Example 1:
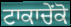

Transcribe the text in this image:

ਟਾਕਾਚੇਂਕੋ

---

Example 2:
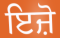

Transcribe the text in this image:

ਇਜ਼ੋ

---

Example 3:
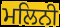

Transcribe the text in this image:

ਮਲਿਨੀ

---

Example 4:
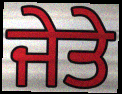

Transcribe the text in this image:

ਜੇਤੇ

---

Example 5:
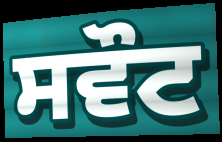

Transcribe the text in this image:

ਸਵੌਟ